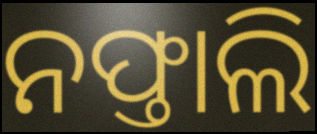
ନଫ୍ତାଲି